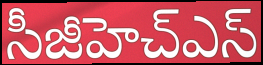
సీజీహెచ్ఎస్